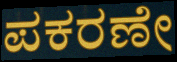
ಪಕರಣೇ